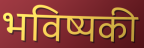
भविष्यकी